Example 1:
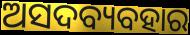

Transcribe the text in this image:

ଅସଦବ୍ୟବହାର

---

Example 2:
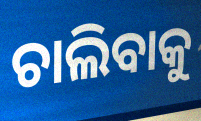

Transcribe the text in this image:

ଚାଲିବାକୁ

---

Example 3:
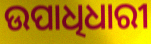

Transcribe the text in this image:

ଉପାଧିଧାରୀ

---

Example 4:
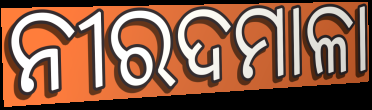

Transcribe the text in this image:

ନୀରଦମାଳା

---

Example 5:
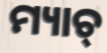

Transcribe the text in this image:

ମ୍ୟାଚ୍